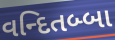
વન્દિતબ્બા